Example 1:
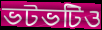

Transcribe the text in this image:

ভটভটিও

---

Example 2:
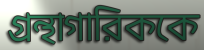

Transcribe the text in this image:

গ্রন্থাগারিককে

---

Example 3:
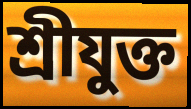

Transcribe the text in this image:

শ্রীযুক্ত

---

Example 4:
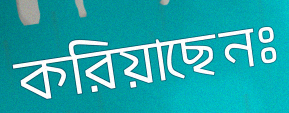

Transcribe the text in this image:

করিয়াছেনঃ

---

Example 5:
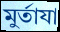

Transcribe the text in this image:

মুর্তাযা